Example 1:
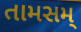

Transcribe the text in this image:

તામસમ્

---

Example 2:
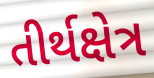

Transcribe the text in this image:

તીર્થક્ષેત્ર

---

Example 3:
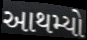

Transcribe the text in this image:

આથમ્યો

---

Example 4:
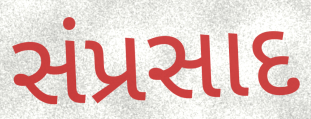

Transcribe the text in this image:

સંપ્રસાદ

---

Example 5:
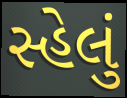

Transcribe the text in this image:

સ્હેલું